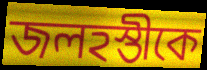
জলহস্তীকে